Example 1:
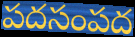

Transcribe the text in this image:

పదసంపద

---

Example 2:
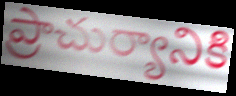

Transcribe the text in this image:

ప్రాచుర్యానికి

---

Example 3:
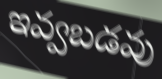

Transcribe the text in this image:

ఇవ్వబడవు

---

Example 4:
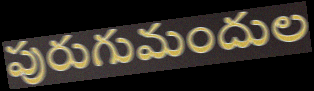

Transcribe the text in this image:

పురుగుమందుల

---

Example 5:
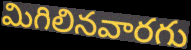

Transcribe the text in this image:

మిగిలినవారగు